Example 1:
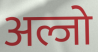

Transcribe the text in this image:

अल्जो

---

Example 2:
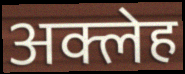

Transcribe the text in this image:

अक्लेह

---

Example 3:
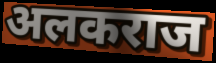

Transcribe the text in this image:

अलकराज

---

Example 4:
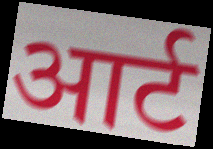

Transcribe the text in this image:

आर्ट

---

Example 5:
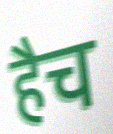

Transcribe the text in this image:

हैच